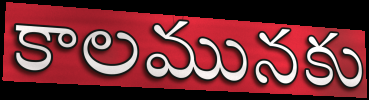
కాలమునకు